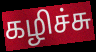
கழிச்சு